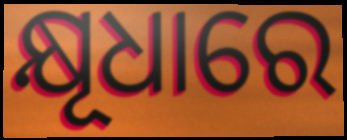
କ୍ଷୂଧାରେ